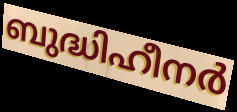
ബുദ്ധിഹീനർ